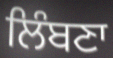
ਲਿੰਬਣਾ